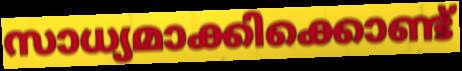
സാധ്യമാക്കിക്കൊണ്ട്